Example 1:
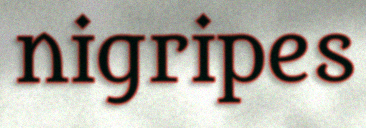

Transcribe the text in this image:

nigripes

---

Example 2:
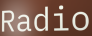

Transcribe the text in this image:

Radio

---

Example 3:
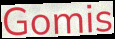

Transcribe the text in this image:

Gomis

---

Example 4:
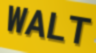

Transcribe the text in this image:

WALT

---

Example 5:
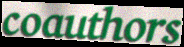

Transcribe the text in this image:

coauthors